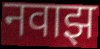
नवाझ